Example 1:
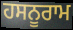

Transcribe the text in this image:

ਹਸਨੂਰਾਮ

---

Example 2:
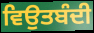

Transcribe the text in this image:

ਵਿਉਤਬੰਦੀ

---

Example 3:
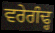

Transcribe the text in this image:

ਵਰੇਗੰਢ੍ਹ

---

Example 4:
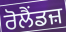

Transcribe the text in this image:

ਰੋਲੈਂਡਜ਼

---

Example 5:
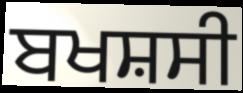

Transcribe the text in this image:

ਬਖਸ਼ਸੀ